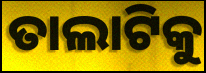
ତାଲାଟିକୁ